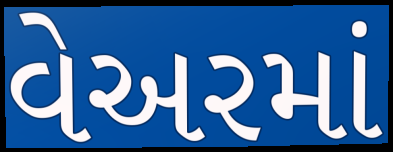
વેઅરમાં